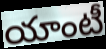
యాంటీ